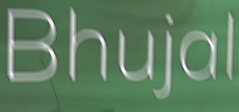
Bhujal